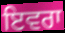
ਇਵਰਾ